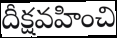
దీక్షవహించి